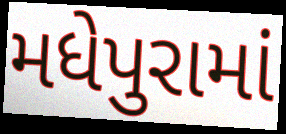
મધેપુરામાં